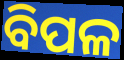
ବିପଳ